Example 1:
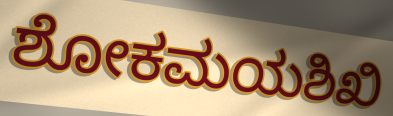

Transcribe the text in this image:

ಶೋಕಮಯಶಿಖಿ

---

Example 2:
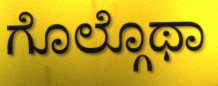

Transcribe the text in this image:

ಗೊಲ್ಗೊಥಾ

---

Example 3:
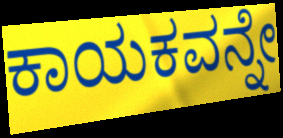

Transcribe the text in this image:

ಕಾಯಕವನ್ನೇ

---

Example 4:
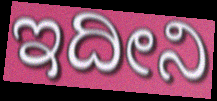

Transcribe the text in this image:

ಇದೀನಿ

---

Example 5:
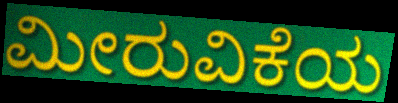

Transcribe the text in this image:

ಮೀರುವಿಕೆಯ